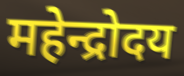
महेन्द्रोदय